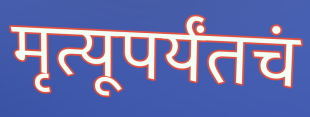
मृत्यूपर्यंतचं